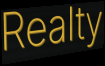
Realty